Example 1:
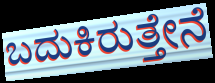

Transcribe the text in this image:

ಬದುಕಿರುತ್ತೇನೆ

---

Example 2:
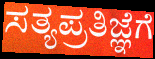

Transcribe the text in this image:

ಸತ್ಯಪ್ರತಿಜ್ಞೆಗೆ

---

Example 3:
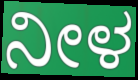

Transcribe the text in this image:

ನೀಳ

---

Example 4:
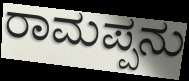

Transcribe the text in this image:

ರಾಮಪ್ಪನು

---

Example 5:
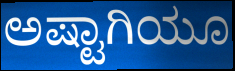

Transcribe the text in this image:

ಅಷ್ಟಾಗಿಯೂ